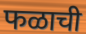
फळाची